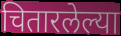
चितारलेल्या